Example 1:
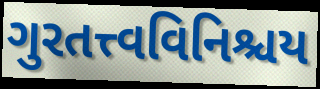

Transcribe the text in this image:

ગુરતત્ત્વવિનિશ્ચય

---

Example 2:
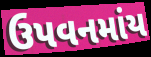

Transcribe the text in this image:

ઉપવનમાંય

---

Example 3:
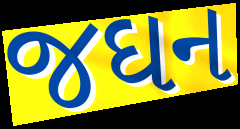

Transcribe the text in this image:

જઘન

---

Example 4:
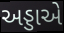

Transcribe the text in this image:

અડ્ડાએ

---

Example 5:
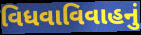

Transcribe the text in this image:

વિધવાવિવાહનું